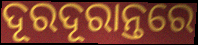
ଦୂରଦୂରାନ୍ତରେ